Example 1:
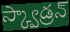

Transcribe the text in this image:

స్క్వాడ్రన్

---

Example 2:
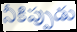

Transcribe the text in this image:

నీకిప్పుడు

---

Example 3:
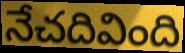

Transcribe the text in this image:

నేచదివింది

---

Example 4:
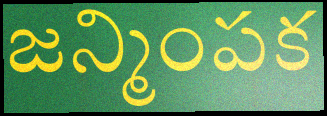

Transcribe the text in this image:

జన్మింపక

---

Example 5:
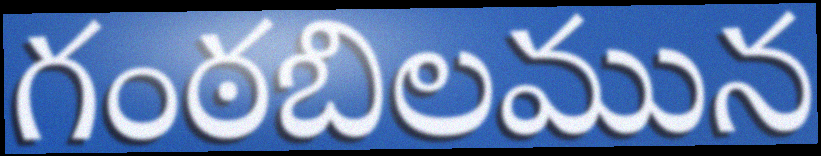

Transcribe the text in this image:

గంఠబిలమున